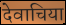
देवाचिया